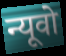
न्यूवो